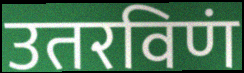
उतरविणं